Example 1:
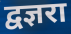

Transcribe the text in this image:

द्वज्ञरा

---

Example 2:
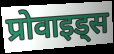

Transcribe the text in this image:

प्रोवाइड्स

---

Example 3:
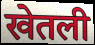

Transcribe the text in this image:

खेतली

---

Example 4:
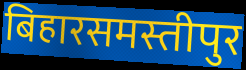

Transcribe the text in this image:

बिहारसमस्तीपुर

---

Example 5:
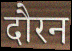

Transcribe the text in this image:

दौरन